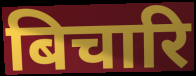
बिचारि